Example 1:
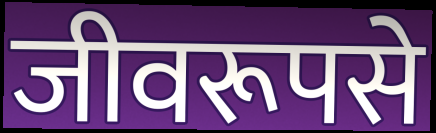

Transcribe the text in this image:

जीवरूपसे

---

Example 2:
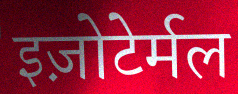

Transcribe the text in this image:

इज़ोटेर्मल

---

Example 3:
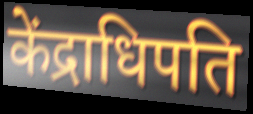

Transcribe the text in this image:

केंद्राधिपति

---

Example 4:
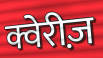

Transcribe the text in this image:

क्वेरीज़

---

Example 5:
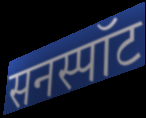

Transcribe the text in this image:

सनस्पॉट